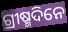
ଗ୍ରୀଷ୍ମଦିନେ